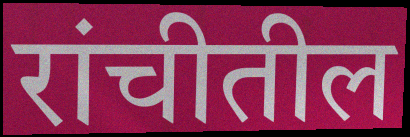
रांचीतील